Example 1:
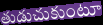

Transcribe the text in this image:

తుడుచుకుంటూ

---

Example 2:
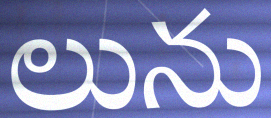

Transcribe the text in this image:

లును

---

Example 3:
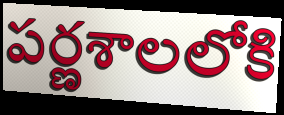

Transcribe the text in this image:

పర్ణశాలలోకి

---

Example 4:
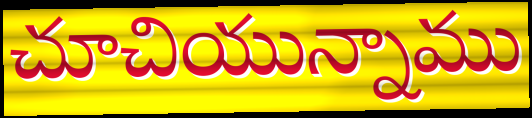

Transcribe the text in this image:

చూచియున్నాము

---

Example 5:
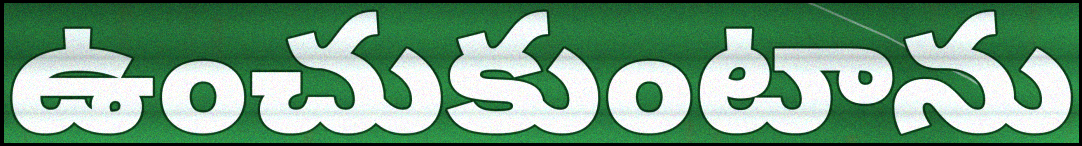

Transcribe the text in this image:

ఉంచుకుంటాను